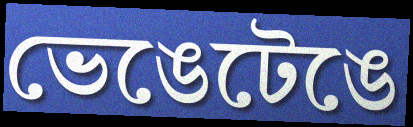
ভেঙেটেঙে